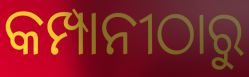
କମ୍ପାନୀଠାରୁ